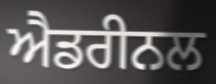
ਐਡਰੀਨਲ